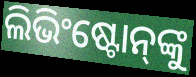
ଲିଭିଂଷ୍ଟୋନ୍‌ଙ୍କୁ